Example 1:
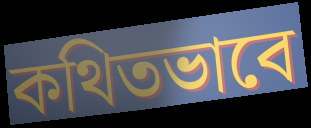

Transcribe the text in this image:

কথিতভাবে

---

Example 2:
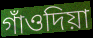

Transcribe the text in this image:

গাঁওদিয়া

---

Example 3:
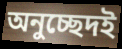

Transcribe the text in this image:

অনুচ্ছেদই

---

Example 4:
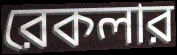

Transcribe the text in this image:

রেকলার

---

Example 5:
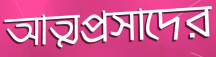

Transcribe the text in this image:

আত্মপ্রসাদের